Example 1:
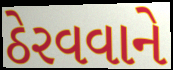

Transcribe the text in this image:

ઠેરવવાને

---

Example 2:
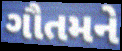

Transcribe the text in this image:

ગૌતમને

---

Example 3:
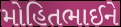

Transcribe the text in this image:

મોહિતભાઈને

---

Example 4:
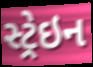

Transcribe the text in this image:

સ્ટ્રેઇન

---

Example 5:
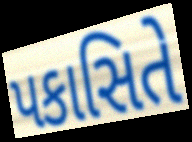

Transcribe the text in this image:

પકાસિતે